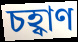
চহ্বাণ